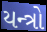
યન્ત્રો